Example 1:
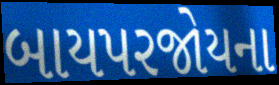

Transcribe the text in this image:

બાયપરજોયના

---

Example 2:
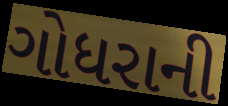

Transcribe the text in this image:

ગોધરાની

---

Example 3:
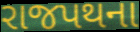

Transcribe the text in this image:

રાજપથના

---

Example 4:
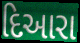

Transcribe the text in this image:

દિઆરા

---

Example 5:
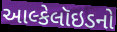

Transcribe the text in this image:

આલ્કેલૉઇડનો